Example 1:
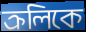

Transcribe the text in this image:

ক্রলিকে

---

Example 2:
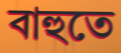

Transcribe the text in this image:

বাহুতে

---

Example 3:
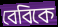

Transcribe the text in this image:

বেবিকে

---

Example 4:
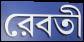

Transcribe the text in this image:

রেবতী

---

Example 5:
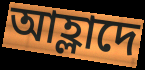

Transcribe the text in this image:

আহ্লাদে